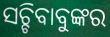
ସଚ୍ଚିବାବୁଙ୍କର